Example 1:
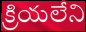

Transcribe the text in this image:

క్రియలేని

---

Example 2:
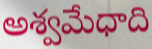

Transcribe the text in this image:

అశ్వమేధాది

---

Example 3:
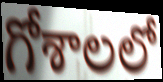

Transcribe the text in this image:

గోశాలలో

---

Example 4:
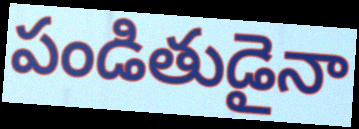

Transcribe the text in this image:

పండితుడైనా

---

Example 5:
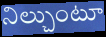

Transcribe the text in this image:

నిల్చుంటూ